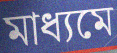
মাধ্যমে